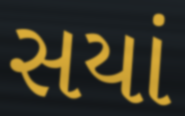
સયાં